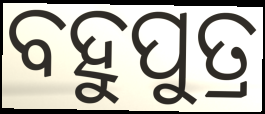
ବହୁପୁତ୍ର